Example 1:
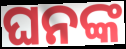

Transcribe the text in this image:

ଘନଙ୍କ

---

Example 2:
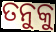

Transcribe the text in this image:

ତନୁକୁ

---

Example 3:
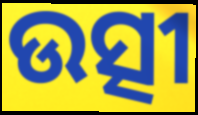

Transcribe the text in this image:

ଉତ୍ସୀ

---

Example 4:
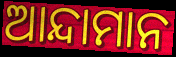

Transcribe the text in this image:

ଆନ୍ଦାମାନ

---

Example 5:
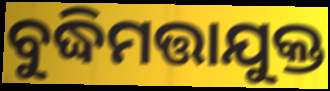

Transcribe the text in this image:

ବୁଦ୍ଧିମତ୍ତାଯୁକ୍ତ